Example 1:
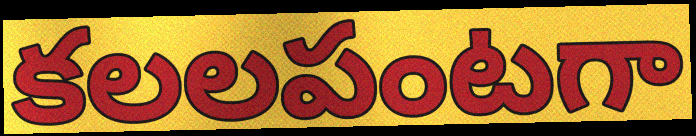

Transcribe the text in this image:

కలలపంటగా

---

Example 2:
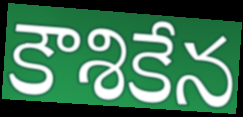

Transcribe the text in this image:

కౌశికేన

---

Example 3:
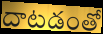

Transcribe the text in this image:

దాటడంతో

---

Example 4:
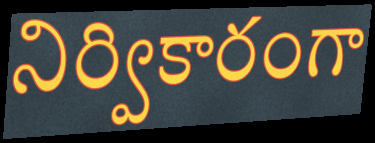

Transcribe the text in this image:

నిర్వికారంగా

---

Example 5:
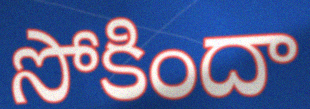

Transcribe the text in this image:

సోకిందా